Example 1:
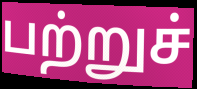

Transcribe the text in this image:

பற்றுச்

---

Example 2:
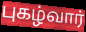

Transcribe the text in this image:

புகழ்வார்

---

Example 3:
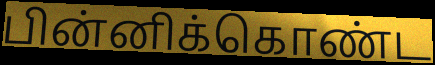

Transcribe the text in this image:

பின்னிக்கொண்ட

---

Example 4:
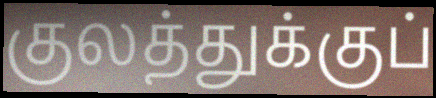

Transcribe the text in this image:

குலத்துக்குப்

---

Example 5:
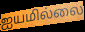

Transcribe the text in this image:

ஐயமில்லை